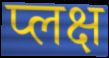
प्लक्ष